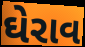
ઘેરાવ